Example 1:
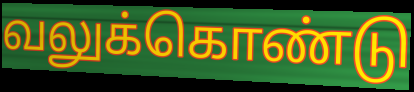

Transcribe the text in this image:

வலுக்கொண்டு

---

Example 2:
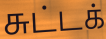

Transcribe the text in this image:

சுட்டக்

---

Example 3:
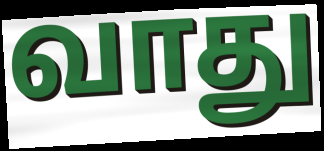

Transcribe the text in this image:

வாது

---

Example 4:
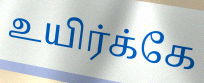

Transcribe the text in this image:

உயிர்க்கே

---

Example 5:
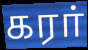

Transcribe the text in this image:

கரர்